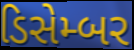
ડિસેમ્બર